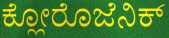
ಕ್ಲೋರೊಜೆನಿಕ್